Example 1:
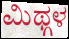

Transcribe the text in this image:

ಮಿಥ್ಗಳ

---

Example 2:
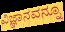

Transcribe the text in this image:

ವಿಜ್ಞಾನವನ್ನೂ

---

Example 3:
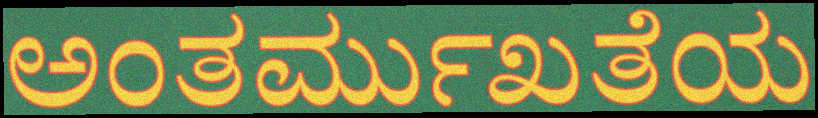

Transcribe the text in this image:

ಅಂತರ್ಮುಖತೆಯ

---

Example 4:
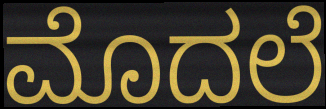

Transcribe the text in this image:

ಮೊದಲೆ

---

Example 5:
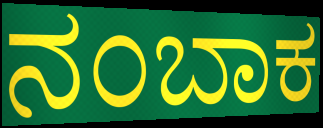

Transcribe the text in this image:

ನಂಬಾಕ